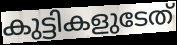
കുട്ടികളുടേത്